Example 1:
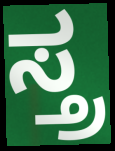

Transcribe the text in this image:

ಸ್ತ್ರ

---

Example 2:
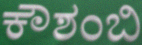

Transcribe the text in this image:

ಕೌಶಂಬಿ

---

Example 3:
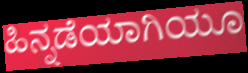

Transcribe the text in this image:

ಹಿನ್ನಡೆಯಾಗಿಯೂ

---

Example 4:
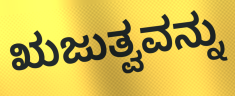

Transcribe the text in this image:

ಋಜುತ್ವವನ್ನು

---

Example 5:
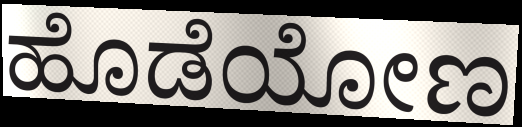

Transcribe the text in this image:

ಹೊಡೆಯೋಣ